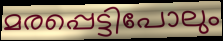
മരപ്പെട്ടിപോലും